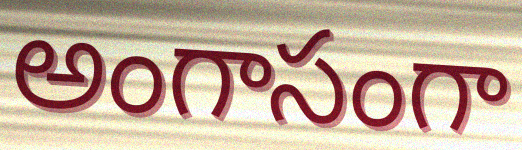
అంగాసంగా